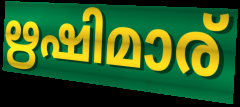
ഋഷിമാര്